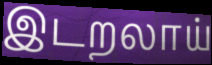
இடறலாய்